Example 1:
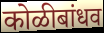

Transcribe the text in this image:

कोळीबांधव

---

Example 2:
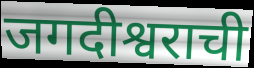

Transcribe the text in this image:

जगदीश्वराची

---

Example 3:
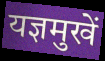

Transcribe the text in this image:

यज्ञमुखें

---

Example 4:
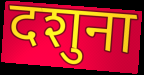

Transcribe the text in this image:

दशुना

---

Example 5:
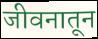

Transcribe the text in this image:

जीवनातून